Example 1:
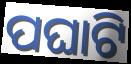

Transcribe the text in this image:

ପଘାଟି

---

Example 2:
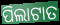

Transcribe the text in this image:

ପିଲାଟାତ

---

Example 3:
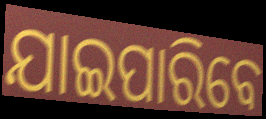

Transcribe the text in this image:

ଯାଇପାରିବେ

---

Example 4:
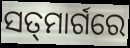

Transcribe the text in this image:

ସତ୍‌ମାର୍ଗରେ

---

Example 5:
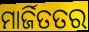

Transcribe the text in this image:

ମାର୍ଜିତତର